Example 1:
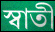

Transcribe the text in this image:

স্বাতী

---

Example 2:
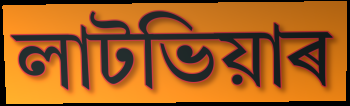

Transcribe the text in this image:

লাটভিয়াৰ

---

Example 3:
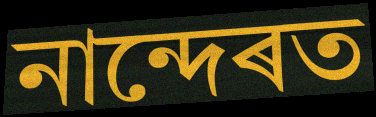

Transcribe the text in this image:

নান্দেৰত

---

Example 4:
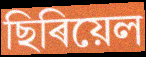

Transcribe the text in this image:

ছিৰিয়েল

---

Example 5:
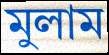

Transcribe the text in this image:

মুলাম